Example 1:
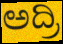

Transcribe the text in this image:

ಅದ್ರಿ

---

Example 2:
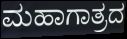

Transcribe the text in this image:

ಮಹಾಗಾತ್ರದ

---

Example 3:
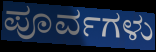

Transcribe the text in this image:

ಪೂರ್ವಗಳು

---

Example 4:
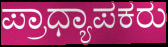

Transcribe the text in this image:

ಪ್ರಾಧ್ಯಾಪಕರು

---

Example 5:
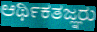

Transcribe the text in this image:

ಆರ್ಥಿಕತಜ್ಞರು